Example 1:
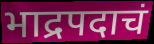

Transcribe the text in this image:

भाद्रपदाचं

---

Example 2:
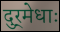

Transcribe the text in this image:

दुर्मेधाः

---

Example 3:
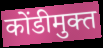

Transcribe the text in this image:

कोंडीमुक्त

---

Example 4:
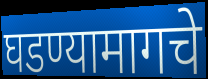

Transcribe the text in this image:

घडण्यामागचे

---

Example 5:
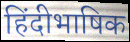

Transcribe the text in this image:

हिंदीभाषिक